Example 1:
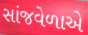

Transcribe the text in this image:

સાંજવેળાએ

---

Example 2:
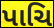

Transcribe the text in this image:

પાચિ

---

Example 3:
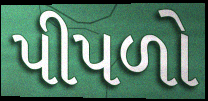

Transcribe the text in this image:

પીપળો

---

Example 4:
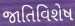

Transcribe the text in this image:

જાતિવિશેષ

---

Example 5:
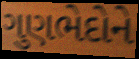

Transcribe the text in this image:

ગુણભેદોને